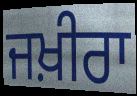
ਜਖ਼ੀਰਾ